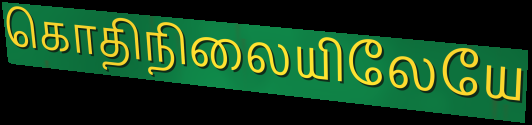
கொதிநிலையிலேயே